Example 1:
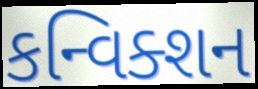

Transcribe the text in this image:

કન્વિક્શન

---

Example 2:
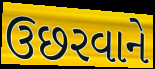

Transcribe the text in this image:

ઉછરવાને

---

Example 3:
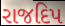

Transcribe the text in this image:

રાજદિપ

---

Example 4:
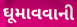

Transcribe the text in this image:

ઘૂમાવવાની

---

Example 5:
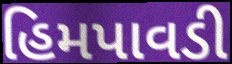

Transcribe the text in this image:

હિમપાવડી